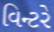
વિન્ટરે